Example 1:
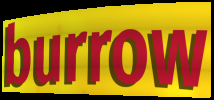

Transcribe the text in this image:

burrow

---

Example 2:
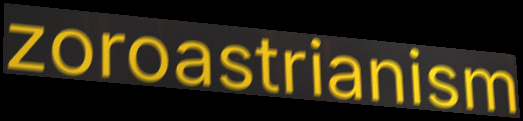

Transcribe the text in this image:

zoroastrianism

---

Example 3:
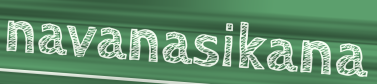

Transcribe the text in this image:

navanasikana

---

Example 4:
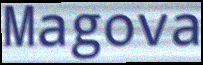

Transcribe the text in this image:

Magova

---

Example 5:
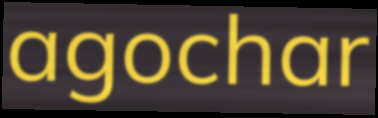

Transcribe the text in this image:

agochar